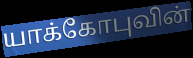
யாக்கோபுவின்